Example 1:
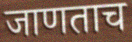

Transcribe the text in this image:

जाणताच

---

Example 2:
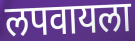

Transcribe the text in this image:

लपवायला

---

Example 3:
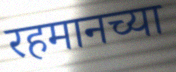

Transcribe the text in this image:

रहमानच्या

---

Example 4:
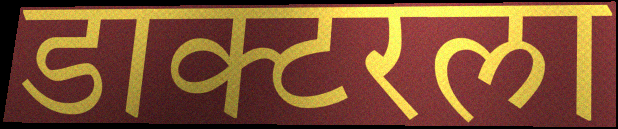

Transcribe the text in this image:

डाक्टरला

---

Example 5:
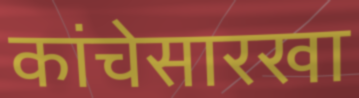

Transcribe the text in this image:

कांचेसारखा